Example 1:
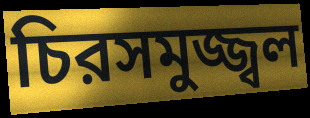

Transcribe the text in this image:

চিরসমুজ্জ্বল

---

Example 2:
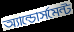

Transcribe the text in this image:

অ্যান্ডোর্সমেন্ট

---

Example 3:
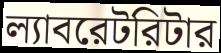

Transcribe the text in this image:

ল্যাবরেটরিটার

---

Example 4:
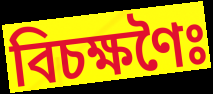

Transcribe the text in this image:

বিচক্ষণৈঃ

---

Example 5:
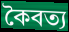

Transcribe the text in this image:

কৈবত্য